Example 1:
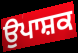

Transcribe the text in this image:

ਉਪਾਸ਼ਕ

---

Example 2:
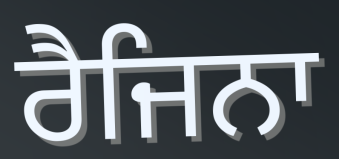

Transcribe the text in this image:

ਰੈਜਿਨਾ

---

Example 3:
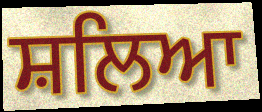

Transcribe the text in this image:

ਸ਼ਲਿਆ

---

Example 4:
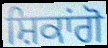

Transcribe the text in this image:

ਸ਼ਿਕਾਂਗੋ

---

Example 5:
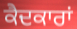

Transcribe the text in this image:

ਕੈਦਕਾਰਾਂ